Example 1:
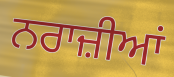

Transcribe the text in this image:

ਨਰਾਜ਼ੀਆਂ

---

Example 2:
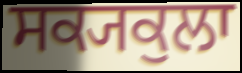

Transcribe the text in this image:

ਸਕ੍ਯਕੁਲਾ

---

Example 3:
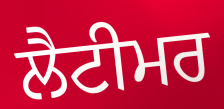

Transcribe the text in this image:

ਲੈਟੀਮਰ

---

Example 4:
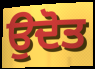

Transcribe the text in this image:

ਉਦੋਤ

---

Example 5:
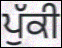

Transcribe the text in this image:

ਪੁੱਕੀ